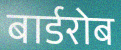
बार्डरोब